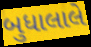
બુધાલાલે